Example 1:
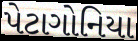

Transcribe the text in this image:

પેટાગોનિયા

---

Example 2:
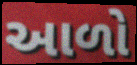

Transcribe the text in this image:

આળો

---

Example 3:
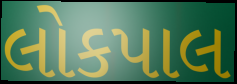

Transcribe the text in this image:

લોકપાલ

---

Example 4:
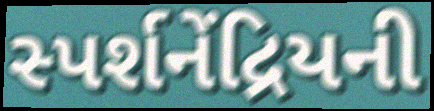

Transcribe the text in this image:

સ્પર્શનેંદ્રિયની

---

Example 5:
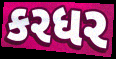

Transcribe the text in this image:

કરધર